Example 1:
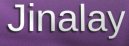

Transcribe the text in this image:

Jinalay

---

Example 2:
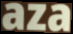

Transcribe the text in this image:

aza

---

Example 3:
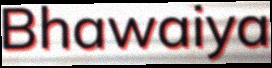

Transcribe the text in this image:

Bhawaiya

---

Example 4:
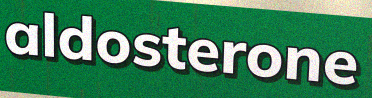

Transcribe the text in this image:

aldosterone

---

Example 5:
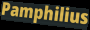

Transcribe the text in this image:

Pamphilius